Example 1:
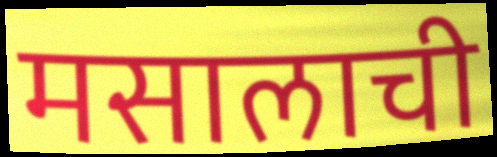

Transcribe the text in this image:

मसालाची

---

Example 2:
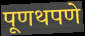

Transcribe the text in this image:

पूणथपणे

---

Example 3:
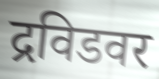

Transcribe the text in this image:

द्रविडवर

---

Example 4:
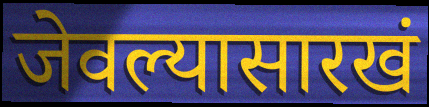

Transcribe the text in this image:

जेवल्यासारखं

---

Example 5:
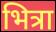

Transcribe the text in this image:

भित्रा